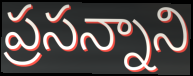
ప్రసన్నాని